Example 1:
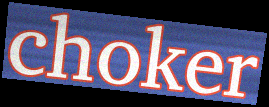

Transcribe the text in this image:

choker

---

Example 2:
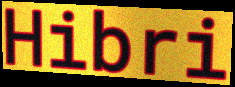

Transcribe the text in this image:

Hibri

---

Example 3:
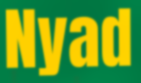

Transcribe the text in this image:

Nyad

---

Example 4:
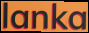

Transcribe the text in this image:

lanka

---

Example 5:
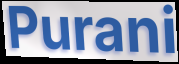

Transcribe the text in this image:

Purani